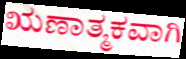
ಋಣಾತ್ಮಕವಾಗಿ